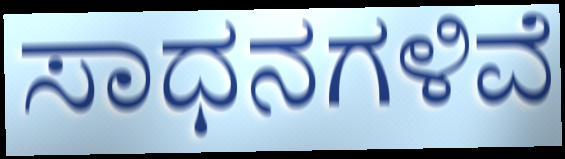
ಸಾಧನಗಳಿವೆ